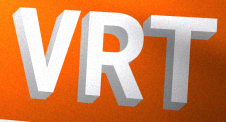
VRT